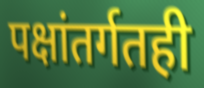
पक्षांतर्गतही